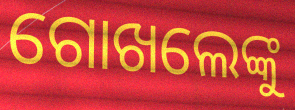
ଗୋଖଲେଙ୍କୁ